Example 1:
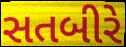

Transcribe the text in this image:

સતબીરે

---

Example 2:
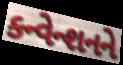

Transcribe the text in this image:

કન્વેન્શનને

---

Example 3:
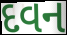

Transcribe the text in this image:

દવન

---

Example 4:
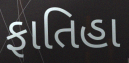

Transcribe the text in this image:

ફાતિહા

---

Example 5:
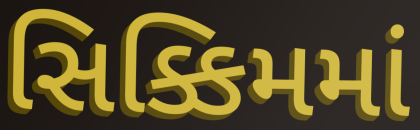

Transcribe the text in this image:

સિક્કિમમાં